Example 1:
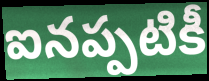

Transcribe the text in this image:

ఐనప్పటికీ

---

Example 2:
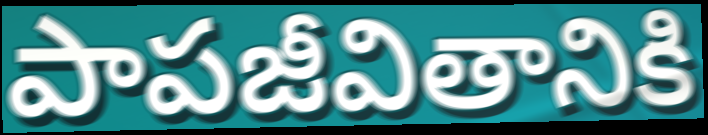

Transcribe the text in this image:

పాపజీవితానికి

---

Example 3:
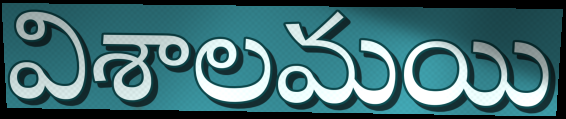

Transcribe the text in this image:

విశాలమయి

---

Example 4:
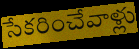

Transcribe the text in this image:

సేకరించేవాళ్లు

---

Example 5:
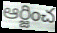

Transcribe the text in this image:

ఆర్జించ